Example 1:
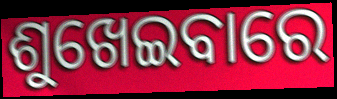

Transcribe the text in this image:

ଶୁଖେଇବାରେ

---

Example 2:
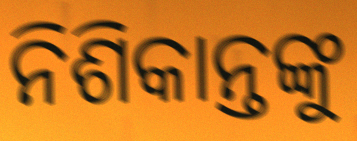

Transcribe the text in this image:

ନିଶିକାନ୍ତଙ୍କୁ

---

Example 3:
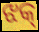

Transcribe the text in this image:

ଝକ୍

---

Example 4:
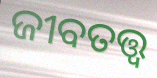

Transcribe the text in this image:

ଜୀବତତ୍ତ୍ୱ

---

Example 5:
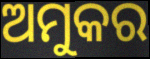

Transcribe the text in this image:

ଅମୁକର